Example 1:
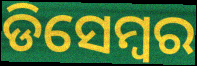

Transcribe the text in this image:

ଡିସେମ୍ୱର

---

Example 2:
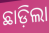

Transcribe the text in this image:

ଛାଡ଼ିଲା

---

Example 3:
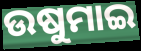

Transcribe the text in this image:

ଉଷୁମାଇ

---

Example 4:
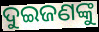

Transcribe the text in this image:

ଦୁଇଜଣଙ୍କୁ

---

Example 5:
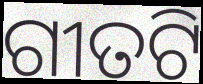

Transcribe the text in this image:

ଗୀତଟି